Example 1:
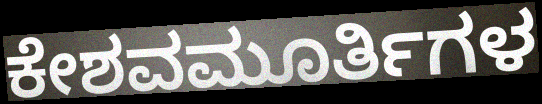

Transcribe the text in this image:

ಕೇಶವಮೂರ್ತಿಗಳ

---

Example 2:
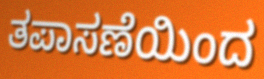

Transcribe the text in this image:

ತಪಾಸಣೆಯಿಂದ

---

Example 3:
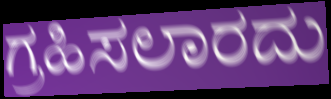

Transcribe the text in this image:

ಗ್ರಹಿಸಲಾರದು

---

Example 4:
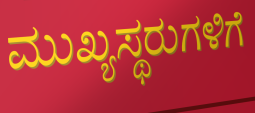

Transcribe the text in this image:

ಮುಖ್ಯಸ್ಥರುಗಳಿಗೆ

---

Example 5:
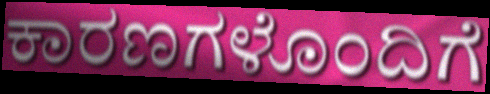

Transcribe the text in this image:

ಕಾರಣಗಳೊಂದಿಗೆ